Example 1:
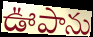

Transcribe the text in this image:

ఊపాను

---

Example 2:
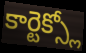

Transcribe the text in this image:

కార్టెక్స్లో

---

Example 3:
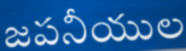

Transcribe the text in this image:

జపనీయుల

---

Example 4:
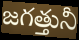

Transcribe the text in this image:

జగత్తునీ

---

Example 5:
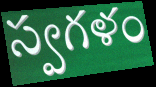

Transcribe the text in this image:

స్వగళం